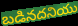
బడినదనియు